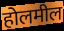
होलमील